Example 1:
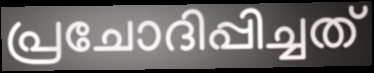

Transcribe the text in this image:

പ്രചോദിപ്പിച്ചത്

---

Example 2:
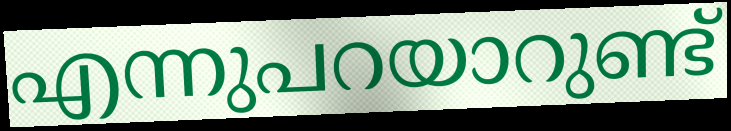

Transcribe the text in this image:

എന്നുപറയാറുണ്ട്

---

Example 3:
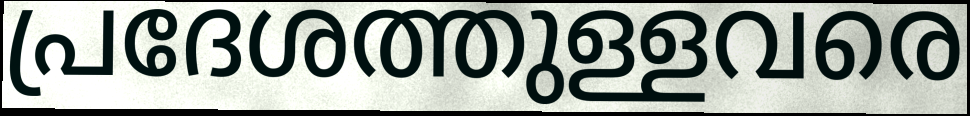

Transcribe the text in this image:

പ്രദേശത്തുള്ളവരെ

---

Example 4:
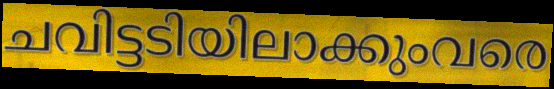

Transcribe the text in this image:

ചവിട്ടടിയിലാക്കുംവരെ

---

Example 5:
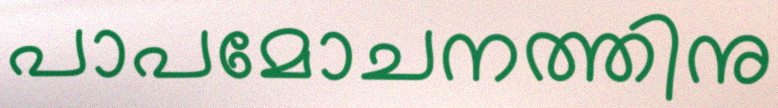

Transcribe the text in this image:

പാപമോചനത്തിനു